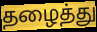
தழைத்து